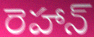
రెహాన్